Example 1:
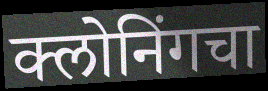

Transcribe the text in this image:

क्लोनिंगचा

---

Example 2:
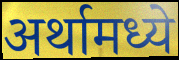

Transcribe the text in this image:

अर्थामध्ये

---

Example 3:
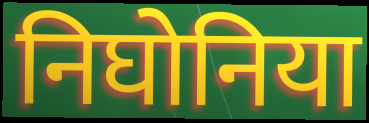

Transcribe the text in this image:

निघोनिया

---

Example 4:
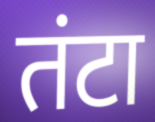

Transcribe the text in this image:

तंटा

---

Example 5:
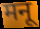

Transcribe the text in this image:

मनू